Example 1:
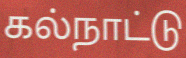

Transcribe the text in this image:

கல்நாட்டு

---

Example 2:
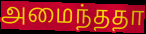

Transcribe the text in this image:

அமைந்ததா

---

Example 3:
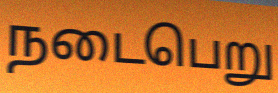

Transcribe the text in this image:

நடைபெறு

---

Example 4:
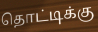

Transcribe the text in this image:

தொட்டிக்கு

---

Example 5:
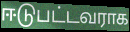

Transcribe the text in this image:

ஈடுபட்டவராக